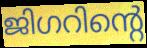
ജിഗറിന്റെ